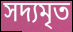
সদ্যমৃত